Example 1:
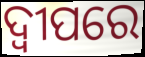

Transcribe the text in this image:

ଦ୍ୱୀପରେ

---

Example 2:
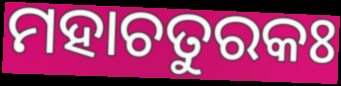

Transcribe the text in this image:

ମହାଚତୁରକଃ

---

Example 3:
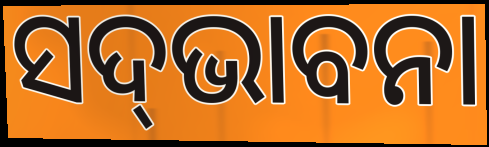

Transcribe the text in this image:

ସଦ୍‌ଭାବନା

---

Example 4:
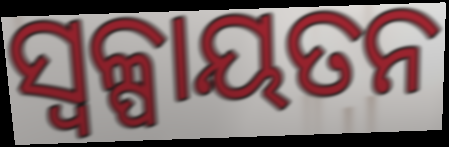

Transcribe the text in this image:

ସ୍ୱଳ୍ପାୟତନ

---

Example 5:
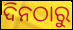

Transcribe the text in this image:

ଦିନଠାରୁ